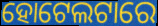
ହୋଟେଲଟାରେ